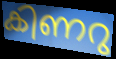
കിണറു